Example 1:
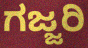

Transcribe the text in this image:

ಗಜ್ಜರಿ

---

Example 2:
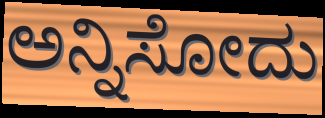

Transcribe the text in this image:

ಅನ್ನಿಸೋದು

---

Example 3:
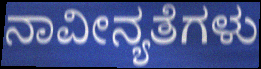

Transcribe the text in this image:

ನಾವೀನ್ಯತೆಗಳು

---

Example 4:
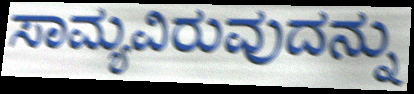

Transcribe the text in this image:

ಸಾಮ್ಯವಿರುವುದನ್ನು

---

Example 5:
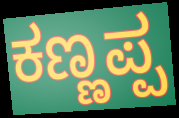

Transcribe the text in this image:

ಕಣ್ಣಪ್ಪ